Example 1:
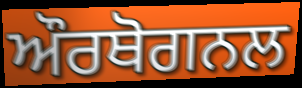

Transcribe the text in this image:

ਔਰਥੋਗਨਲ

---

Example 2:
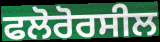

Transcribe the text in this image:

ਫਲੋਰੋਰਸੀਲ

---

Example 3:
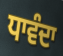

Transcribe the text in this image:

ਧਾਵੰਦਾ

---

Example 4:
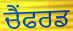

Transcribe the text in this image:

ਚੈਂਫਰਡ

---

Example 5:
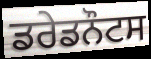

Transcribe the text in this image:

ਡਰੇਡਨੌਟਸ